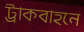
ট্রাকবাহনে